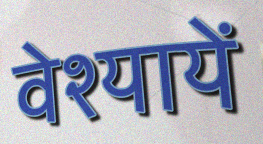
वेश्यायें